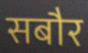
सबौर